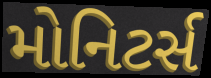
મોનિટર્સ